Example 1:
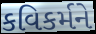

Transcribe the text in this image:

કવિકર્મને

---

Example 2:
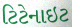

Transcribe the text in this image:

ટિટેનાઇટ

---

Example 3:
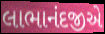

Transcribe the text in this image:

લાભાનંદજીએ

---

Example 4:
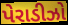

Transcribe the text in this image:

પેરાડીઝો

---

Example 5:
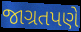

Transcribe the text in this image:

જાગ્રતપણે